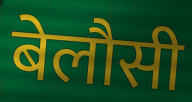
बेलौसी